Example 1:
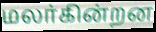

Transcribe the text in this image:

மலர்கின்றன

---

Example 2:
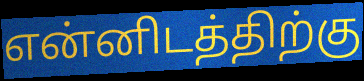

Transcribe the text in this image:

என்னிடத்திற்கு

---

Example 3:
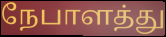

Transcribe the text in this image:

நேபாளத்து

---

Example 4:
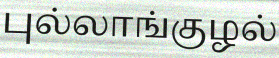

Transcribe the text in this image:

புல்லாங்குழல்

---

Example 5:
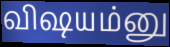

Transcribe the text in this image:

விஷயம்னு